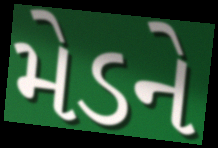
મેડને